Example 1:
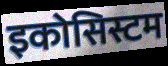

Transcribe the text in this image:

इकोसिस्टम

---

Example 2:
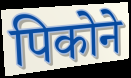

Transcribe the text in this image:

पिकोने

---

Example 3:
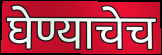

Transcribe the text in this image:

घेण्याचेच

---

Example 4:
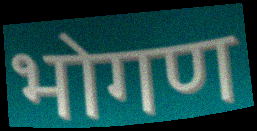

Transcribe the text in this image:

भोगण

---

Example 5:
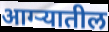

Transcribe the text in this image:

आग्ऱ्यातील